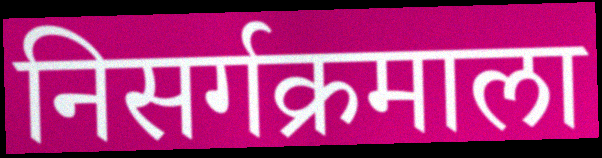
निसर्गक्रमाला